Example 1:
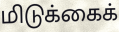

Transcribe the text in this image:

மிடுக்கைக்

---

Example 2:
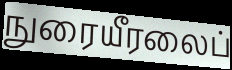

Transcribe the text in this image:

நுரையீரலைப்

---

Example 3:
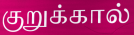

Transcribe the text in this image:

குறுக்கால்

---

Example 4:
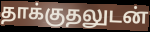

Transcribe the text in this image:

தாக்குதலுடன்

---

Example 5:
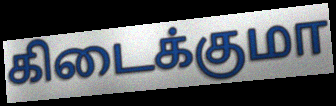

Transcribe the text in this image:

கிடைக்குமா